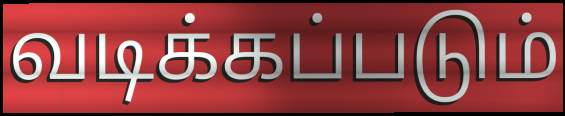
வடிக்கப்படும்